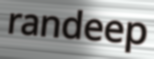
randeep